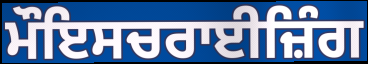
ਮੌਇਸਚਰਾਈਜ਼ਿੰਗ